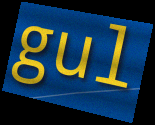
gul